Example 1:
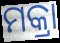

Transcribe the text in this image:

ମକ୍ରା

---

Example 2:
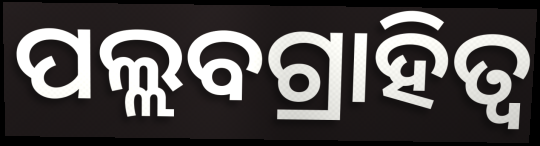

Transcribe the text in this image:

ପଲ୍ଲବଗ୍ରାହିତ୍ୱ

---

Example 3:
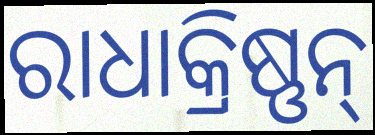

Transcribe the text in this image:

ରାଧାକ୍ରିଷ୍ଣନ୍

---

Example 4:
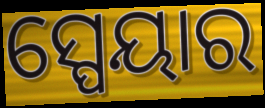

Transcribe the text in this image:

ସ୍ପେୟାର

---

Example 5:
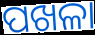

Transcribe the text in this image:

ପଖଳା